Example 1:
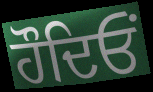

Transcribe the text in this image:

ਹੌਦਿਓਂ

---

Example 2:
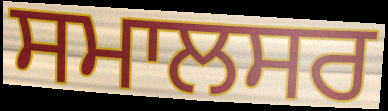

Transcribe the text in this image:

ਸਮਾਲਸਰ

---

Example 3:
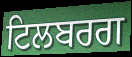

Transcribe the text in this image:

ਟਿਲਬਰਗ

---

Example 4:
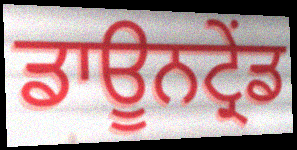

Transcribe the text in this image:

ਡਾਊਨਟ੍ਰੇਂਡ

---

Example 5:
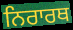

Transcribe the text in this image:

ਨਿਰਾਰਥ